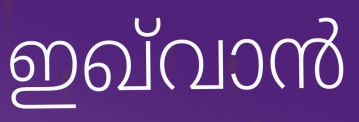
ഇഖ്‌വാൻ